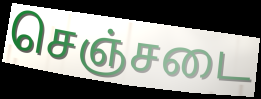
செஞ்சடை